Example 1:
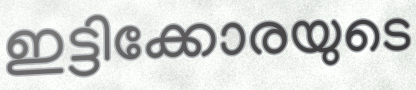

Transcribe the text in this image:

ഇട്ടിക്കോരയുടെ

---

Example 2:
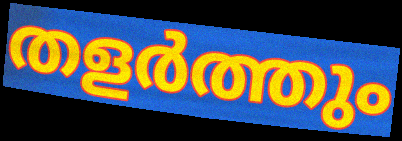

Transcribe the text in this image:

തളർത്തും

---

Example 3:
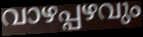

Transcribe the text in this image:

വാഴപ്പഴവും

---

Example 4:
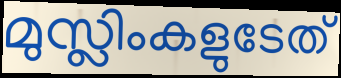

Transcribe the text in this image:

മുസ്ലിംകളുടേത്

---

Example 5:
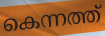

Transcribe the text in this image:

കെന്നത്ത്